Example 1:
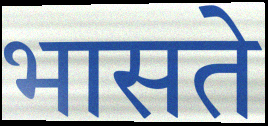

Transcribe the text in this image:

भासते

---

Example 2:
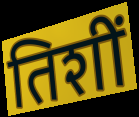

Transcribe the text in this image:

तिशीं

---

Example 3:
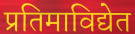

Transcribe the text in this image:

प्रतिमाविद्येत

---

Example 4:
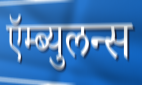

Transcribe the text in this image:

ऍम्ब्युलन्स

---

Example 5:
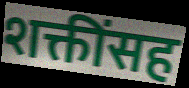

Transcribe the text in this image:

शक्तींसह